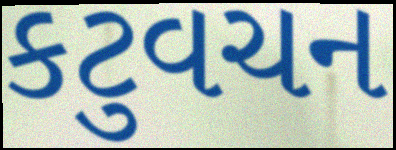
કટુવચન